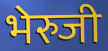
भेरुजी